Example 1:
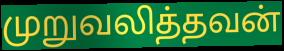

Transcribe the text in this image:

முறுவலித்தவன்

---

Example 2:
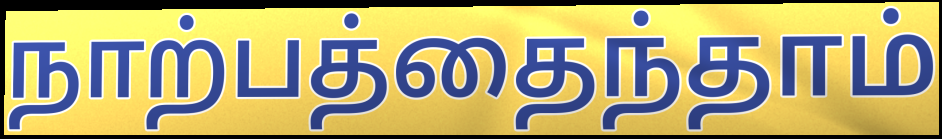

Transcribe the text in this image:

நாற்பத்தைந்தாம்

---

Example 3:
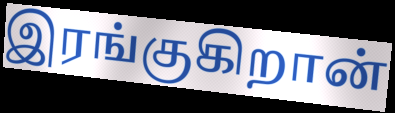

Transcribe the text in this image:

இரங்குகிறான்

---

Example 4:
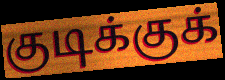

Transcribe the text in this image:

குடிக்குக்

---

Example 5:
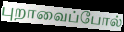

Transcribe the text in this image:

புறாவைப்போல்